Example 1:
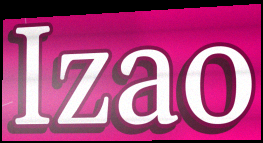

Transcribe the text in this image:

Izao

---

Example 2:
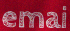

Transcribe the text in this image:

emai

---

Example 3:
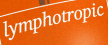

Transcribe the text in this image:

lymphotropic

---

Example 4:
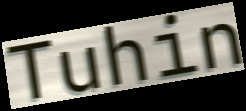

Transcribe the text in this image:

Tuhin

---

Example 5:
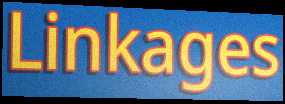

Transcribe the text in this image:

Linkages